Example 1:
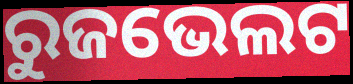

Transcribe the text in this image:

ରୁଜଭେଲଟ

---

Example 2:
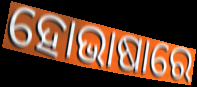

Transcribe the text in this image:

ହୋଭାଷାରେ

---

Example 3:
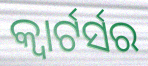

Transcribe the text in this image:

କ୍ବାର୍ଟର୍ସର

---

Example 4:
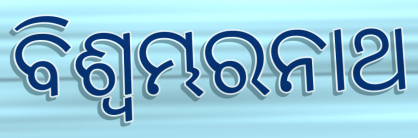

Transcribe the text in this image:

ବିଶ୍ୱମ୍ଭରନାଥ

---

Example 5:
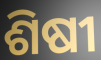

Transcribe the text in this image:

ଶିଷୀ